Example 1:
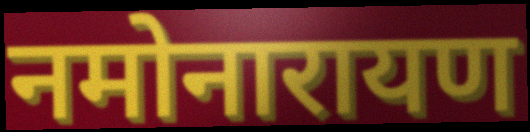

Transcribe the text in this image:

नमोनारायण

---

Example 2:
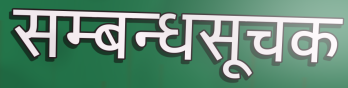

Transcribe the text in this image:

सम्बन्धसूचक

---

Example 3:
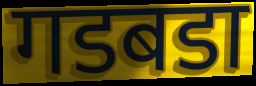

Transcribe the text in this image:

गडबडा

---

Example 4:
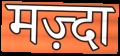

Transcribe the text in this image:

मज़्दा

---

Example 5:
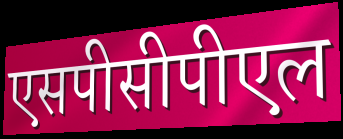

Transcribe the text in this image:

एसपीसीपीएल